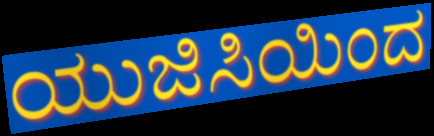
ಯುಜಿಸಿಯಿಂದ